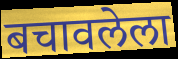
बचावलेला